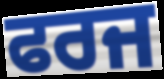
ਫਰਜ